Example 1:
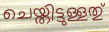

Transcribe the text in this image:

ചെയ്തിട്ടുള്ളതു്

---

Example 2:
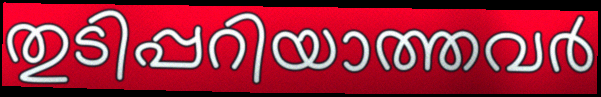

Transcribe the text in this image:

തുടിപ്പറിയാത്തവർ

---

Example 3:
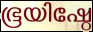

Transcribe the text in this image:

ഭൂയിഷ്ഠേ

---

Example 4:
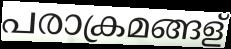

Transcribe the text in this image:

പരാക്രമങ്ങള്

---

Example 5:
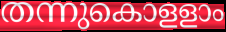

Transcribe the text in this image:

തന്നുകൊളളാം